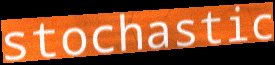
stochastic